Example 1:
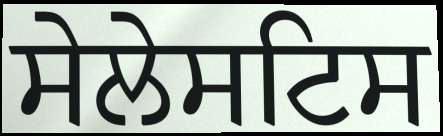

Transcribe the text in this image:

ਸੇਲੇਸਟਿਸ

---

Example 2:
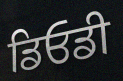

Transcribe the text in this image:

ਡਿਓਡੀ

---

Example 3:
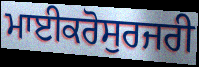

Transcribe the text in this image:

ਮਾਈਕਰੋਸੁਰਜਰੀ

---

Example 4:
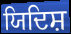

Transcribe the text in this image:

ਯਿਦਿਸ਼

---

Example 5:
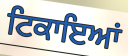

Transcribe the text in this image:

ਟਿਕਾਇਆਂ